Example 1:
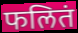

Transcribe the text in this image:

फलितं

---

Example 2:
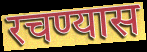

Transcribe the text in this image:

रचण्यास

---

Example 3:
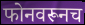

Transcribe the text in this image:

फोनवरूनच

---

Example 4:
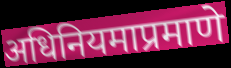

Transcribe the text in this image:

अधिनियमाप्रमाणे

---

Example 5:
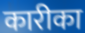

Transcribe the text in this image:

कारीका